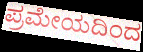
ಪ್ರಮೇಯದಿಂದ